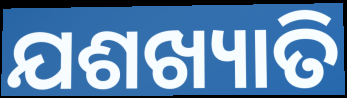
ଯଶଖ୍ୟାତି